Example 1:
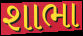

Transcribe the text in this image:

શાભા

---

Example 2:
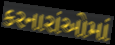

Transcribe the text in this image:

કરનારાંઓમાં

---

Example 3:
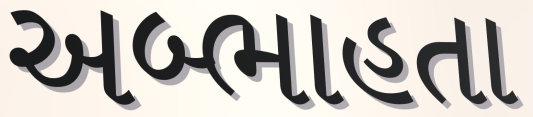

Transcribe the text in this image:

અબ્ભાહતા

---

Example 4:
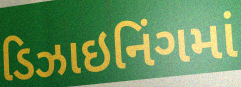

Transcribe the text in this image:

ડિઝાઇનિંગમાં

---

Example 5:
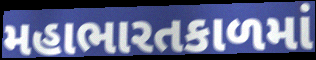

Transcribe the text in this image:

મહાભારતકાળમાં